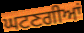
ਘਟਣਗੀਆਂ